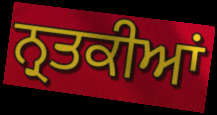
ਨ੍ਰਤਕੀਆਂ